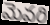
మెవరి